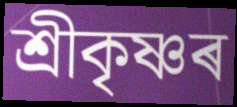
শ্ৰীকৃষ্ণৰ